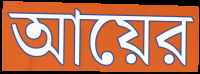
আয়ের